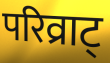
परिव्राट्